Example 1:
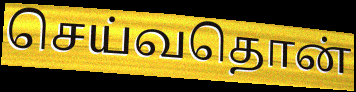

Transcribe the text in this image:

செய்வதொன்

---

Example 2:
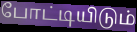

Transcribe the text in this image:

போட்டியிடும்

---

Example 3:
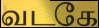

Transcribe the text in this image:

வடகே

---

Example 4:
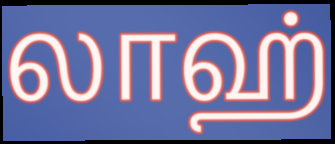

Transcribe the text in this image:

லாஹ்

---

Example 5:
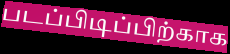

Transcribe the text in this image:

படப்பிடிப்பிற்காக